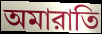
অমারাতি